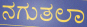
ನಗುತಲಾ